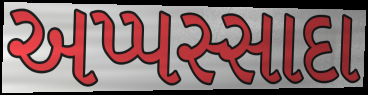
અપ્પસ્સાદા